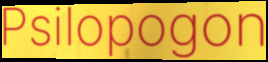
Psilopogon